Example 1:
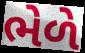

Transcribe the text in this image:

ભેળે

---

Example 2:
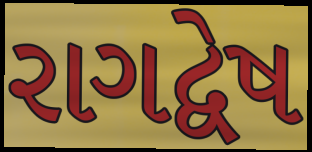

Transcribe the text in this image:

રાગદ્વેષ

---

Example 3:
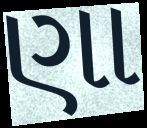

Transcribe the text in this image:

ણા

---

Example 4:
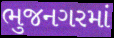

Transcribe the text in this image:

ભુજનગરમાં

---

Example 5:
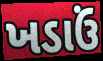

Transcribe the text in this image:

ખડાઉં